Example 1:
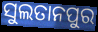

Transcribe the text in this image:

ସୁଲତାନପୁର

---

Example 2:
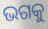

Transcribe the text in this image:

ଭଗକୁ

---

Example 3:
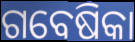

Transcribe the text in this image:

ଗବେଷିକା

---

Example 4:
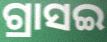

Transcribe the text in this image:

ଗ୍ରାସଇ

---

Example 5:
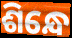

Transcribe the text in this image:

ଶିନ୍ଧେ